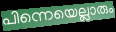
പിന്നെയെല്ലാരും